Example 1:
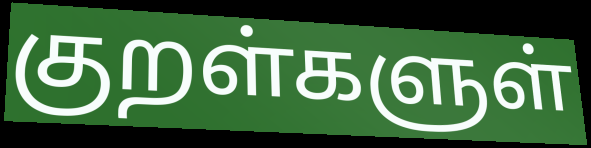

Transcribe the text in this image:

குறள்களுள்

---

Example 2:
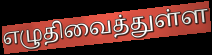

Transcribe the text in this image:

எழுதிவைத்துள்ள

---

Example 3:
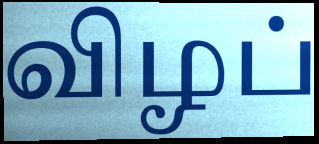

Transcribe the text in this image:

விழப்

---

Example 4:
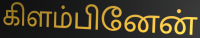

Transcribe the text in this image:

கிளம்பினேன்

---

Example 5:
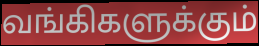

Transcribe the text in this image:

வங்கிகளுக்கும்